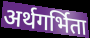
अर्थगर्भिता